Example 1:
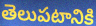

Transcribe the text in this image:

తెలుపటానికి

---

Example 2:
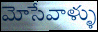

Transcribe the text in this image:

మోసేవాళ్ళు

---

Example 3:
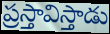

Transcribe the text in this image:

ప్రస్తావిస్తాడు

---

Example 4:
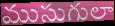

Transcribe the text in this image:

ముసుగులా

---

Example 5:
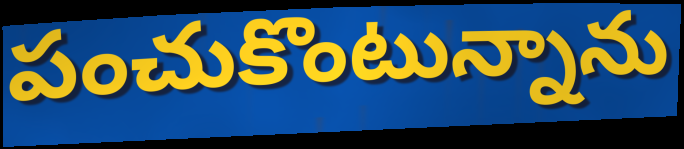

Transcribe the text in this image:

పంచుకొంటున్నాను